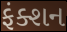
ફંક્શન